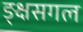
ङ्क्षसगल